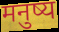
मनुष्य